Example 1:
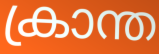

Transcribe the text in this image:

ക്രാന്ത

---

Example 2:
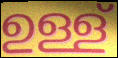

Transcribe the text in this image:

ഉള്ള്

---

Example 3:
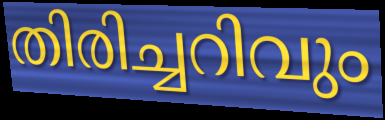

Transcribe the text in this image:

തിരിച്ചറിവും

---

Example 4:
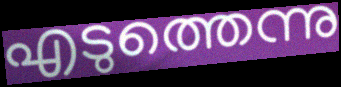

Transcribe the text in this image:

എടുത്തെന്നു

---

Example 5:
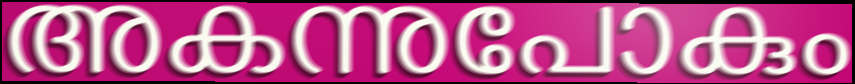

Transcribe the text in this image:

അകന്നുപോകും